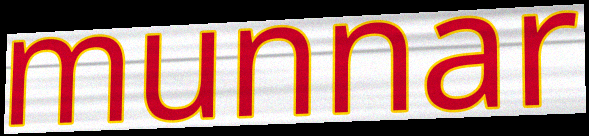
munnar